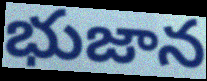
భుజాన